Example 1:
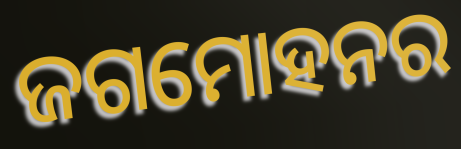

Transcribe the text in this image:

ଜଗମୋହନର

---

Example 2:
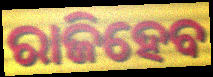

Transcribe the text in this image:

ରାଜିହେବ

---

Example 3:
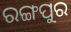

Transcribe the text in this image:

ରଙ୍ଗପୁର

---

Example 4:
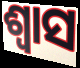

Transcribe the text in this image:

ଶ୍ୱାସ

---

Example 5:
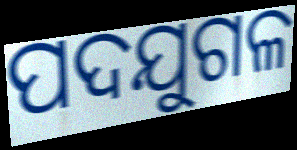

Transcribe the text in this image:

ପଦଯୁଗଳ